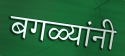
बगळ्यांनी